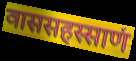
वाससहस्साणं